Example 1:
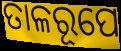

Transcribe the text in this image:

ତାଳରୂପେ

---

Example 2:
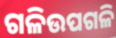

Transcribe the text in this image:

ଗଳିଉପଗଳି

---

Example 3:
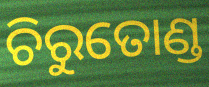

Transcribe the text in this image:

ଚିରୁତୋଣ୍ଡ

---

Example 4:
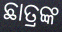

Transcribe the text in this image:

ଛାତ୍ରଙ୍କ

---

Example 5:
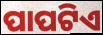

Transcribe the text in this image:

ପାପଟିଏ